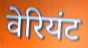
वेरियंट